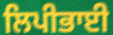
ਲਿਪੀਭਾਈ